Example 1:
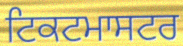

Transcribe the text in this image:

ਟਿਕਟਮਾਸਟਰ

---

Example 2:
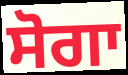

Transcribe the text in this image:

ਸੋਗਾ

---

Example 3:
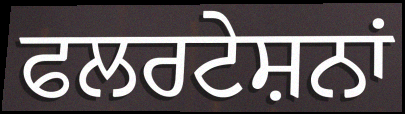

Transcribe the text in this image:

ਫਲਰਟੇਸ਼ਨਾਂ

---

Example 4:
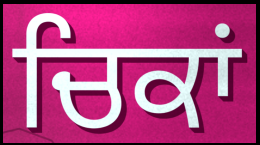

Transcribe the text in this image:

ਚਿਕਾਂ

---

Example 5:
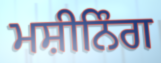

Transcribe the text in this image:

ਮਸ਼ੀਨਿੰਗ